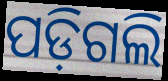
ପଡ଼ିଗଲି